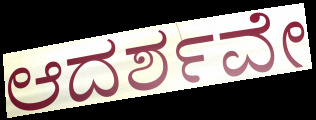
ಆದರ್ಶವೇ